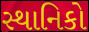
સ્થાનિકો